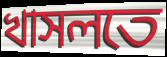
খাসলতে